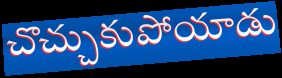
చొచ్చుకుపోయాడు